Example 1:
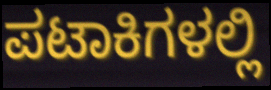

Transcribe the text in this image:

ಪಟಾಕಿಗಳಲ್ಲಿ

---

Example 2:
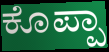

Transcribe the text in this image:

ಕೊಪ್ಪಾ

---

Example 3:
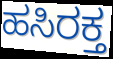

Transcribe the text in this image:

ಹಸಿರಕ್ತ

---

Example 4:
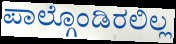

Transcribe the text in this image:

ಪಾಲ್ಗೊಂಡಿರಲಿಲ್ಲ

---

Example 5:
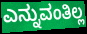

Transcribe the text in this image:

ಎನ್ನುವಂತಿಲ್ಲ